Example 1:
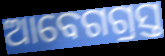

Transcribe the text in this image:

ଆବେଗଗ୍ରସ୍ତ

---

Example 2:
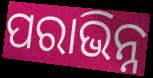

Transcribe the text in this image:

ପରାଭିନ୍ନ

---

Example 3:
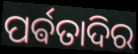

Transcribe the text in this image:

ପର୍ଵତାଦିର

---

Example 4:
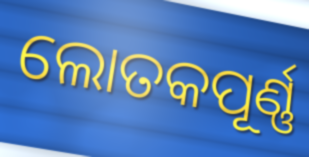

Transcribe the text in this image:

ଲୋତକପୂର୍ଣ୍ଣ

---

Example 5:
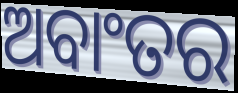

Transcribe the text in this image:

ଅବାଂତର